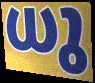
ധു